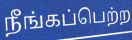
நீங்கப்பெற்ற